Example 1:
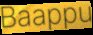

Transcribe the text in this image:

Baappu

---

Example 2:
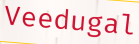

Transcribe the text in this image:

Veedugal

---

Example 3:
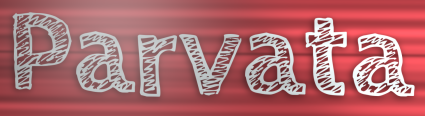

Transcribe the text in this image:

Parvata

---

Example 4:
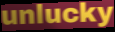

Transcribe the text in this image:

unlucky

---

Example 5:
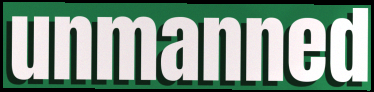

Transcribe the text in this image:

unmanned